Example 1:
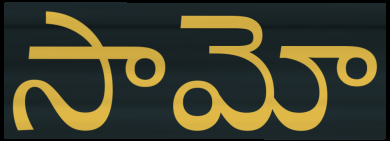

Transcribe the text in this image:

సామో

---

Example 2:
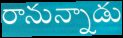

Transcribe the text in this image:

రానున్నాడు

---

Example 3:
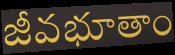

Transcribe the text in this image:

జీవభూతాం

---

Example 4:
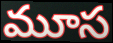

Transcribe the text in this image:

మూస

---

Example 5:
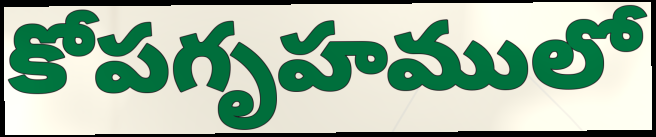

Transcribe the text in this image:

కోపగృహములో